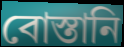
বোস্তানি